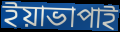
ইয়াভাপাই